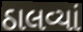
ઠાલવ્યાં